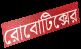
রোবোটিক্সের